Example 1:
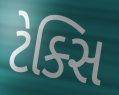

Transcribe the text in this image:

ટેક્સિ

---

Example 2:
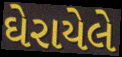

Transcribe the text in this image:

ઘેરાયેલે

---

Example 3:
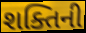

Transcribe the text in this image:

શક્તિની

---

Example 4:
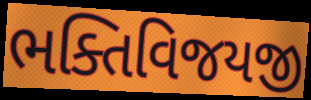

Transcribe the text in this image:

ભક્તિવિજયજી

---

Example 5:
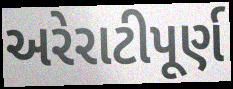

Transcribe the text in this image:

અરેરાટીપૂર્ણ